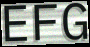
EFG